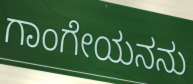
ಗಾಂಗೇಯನನು